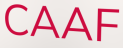
CAAF